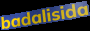
badalisida